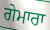
ਗੇਮਾਰਾ